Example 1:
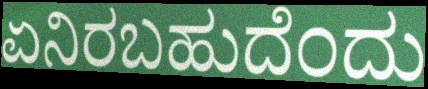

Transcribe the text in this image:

ಏನಿರಬಹುದೆಂದು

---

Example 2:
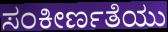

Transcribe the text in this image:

ಸಂಕೀರ್ಣತೆಯು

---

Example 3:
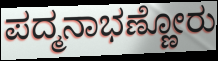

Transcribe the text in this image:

ಪದ್ಮನಾಭಣ್ಣೋರು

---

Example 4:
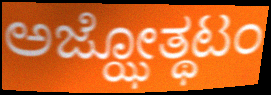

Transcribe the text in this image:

ಅಜ್ಝೋತ್ಥಟಂ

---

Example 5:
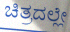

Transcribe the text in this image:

ಚಿತ್ರದಲ್ಲೇ